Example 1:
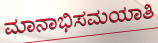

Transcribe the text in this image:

ಮಾನಾಭಿಸಮಯಾತಿ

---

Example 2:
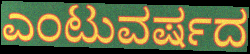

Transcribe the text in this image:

ಎಂಟುವರ್ಷದ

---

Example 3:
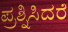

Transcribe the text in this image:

ಪ್ರಶ್ನಿಸಿದರೆ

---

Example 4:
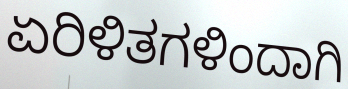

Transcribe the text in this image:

ಏರಿಳಿತಗಳಿಂದಾಗಿ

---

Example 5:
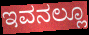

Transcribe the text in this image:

ಇವನಲ್ಲೂ